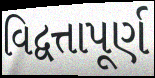
વિદ્વત્તાપૂર્ણ